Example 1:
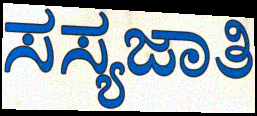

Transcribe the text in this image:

ಸಸ್ಯಜಾತಿ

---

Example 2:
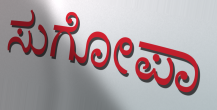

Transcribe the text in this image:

ಸುಗೋಪಾ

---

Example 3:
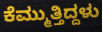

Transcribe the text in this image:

ಕೆಮ್ಮುತ್ತಿದ್ದಳು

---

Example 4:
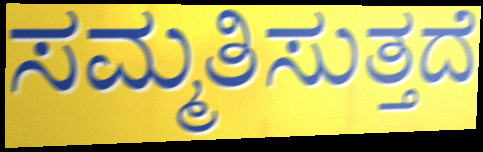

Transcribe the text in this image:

ಸಮ್ಮತಿಸುತ್ತದೆ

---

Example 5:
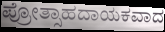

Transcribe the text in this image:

ಪ್ರೋತ್ಸಾಹದಾಯಕವಾದ